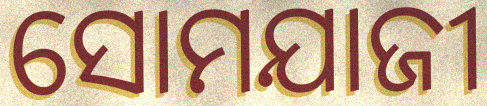
ସୋମଯାଜୀ